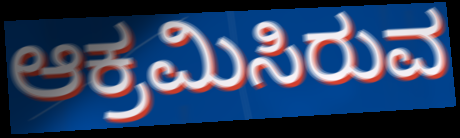
ಆಕ್ರಮಿಸಿರುವ